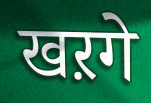
खऱगे